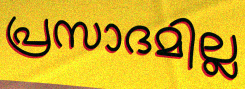
പ്രസാദമില്ല